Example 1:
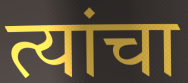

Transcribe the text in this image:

त्यांचा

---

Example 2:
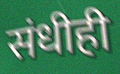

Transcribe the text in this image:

संधीही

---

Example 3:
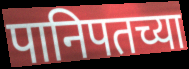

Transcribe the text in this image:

पानिपतच्या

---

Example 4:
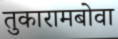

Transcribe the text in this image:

तुकारामबोवा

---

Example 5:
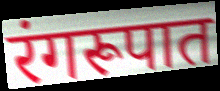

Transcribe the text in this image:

रंगरूपात